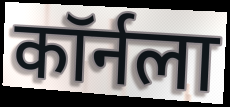
कॉर्नला